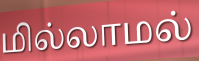
மில்லாமல்